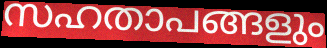
സഹതാപങ്ങളും